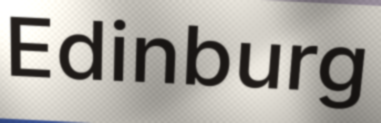
Edinburg